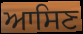
ਆਸਿਣ